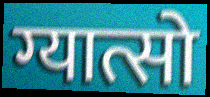
ग्यात्सो